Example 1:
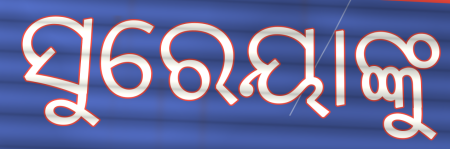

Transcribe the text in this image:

ସୁରେୟାଙ୍କୁ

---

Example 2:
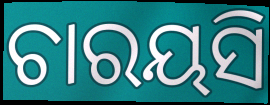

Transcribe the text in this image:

ଚାରୟସି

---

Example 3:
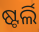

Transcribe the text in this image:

ଷ୍ଟର୍ଲି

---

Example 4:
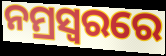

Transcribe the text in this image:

ନମ୍ରସ୍ୱରରେ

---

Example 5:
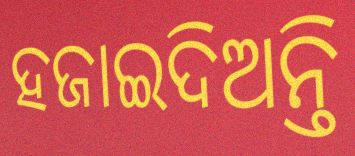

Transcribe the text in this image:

ହଜାଇଦିଅନ୍ତି